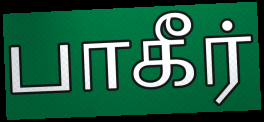
பாகீர்